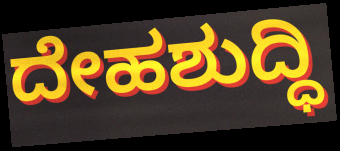
ದೇಹಶುದ್ಧಿ